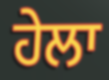
ਹੇਲਾ